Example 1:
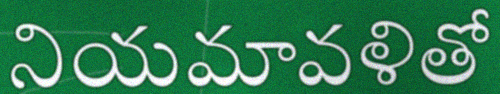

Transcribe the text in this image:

నియమావళితో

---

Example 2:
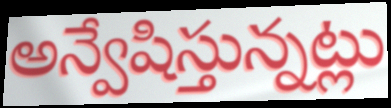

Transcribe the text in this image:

అన్వేషిస్తున్నట్లు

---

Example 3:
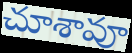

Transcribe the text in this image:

చూశావూ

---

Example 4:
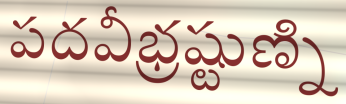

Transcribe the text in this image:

పదవీభ్రష్టుణ్ని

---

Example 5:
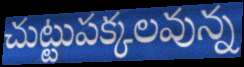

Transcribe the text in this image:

చుట్టుపక్కలవున్న